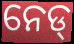
ନେଡ୍